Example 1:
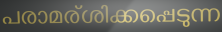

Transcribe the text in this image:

പരാമര്ശിക്കപ്പെടുന്ന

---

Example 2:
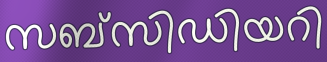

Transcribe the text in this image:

സബ്സിഡിയറി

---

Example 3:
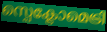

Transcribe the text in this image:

സ്പെക്ട്രോമെട്രി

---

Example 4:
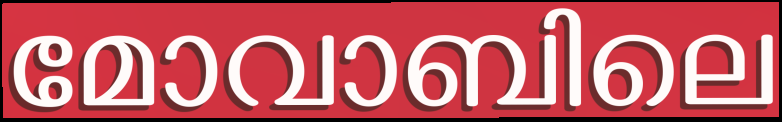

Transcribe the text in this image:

മോവാബിലെ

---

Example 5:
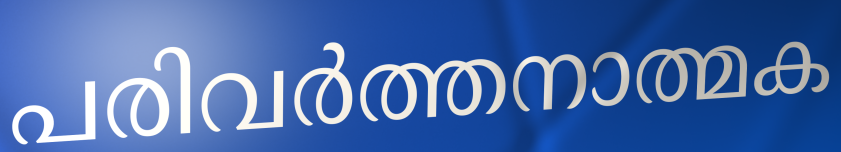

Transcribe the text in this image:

പരിവർത്തനാത്മക